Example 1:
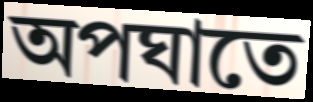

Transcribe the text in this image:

অপঘাতে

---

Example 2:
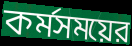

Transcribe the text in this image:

কর্মসময়ের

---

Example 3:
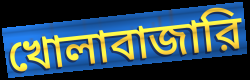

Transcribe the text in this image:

খোলাবাজারি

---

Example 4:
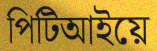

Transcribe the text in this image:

পিটিআইয়ে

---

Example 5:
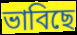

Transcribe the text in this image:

ভাবিছে